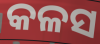
କଳସ